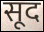
सूद